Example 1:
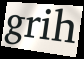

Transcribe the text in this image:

grih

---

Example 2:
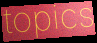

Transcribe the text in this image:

topics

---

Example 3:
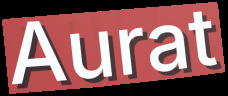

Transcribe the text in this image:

Aurat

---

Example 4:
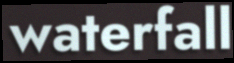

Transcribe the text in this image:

waterfall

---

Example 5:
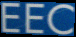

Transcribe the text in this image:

EEC